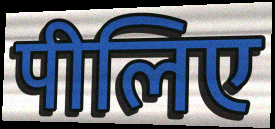
पीलिए